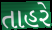
તાહરે